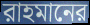
রাহমানের